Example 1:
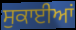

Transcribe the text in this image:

ਸੁਕਾਈਆਂ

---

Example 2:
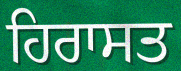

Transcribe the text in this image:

ਹਿਰਾਸਤ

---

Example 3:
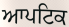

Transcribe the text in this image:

ਆਪਟਿਕ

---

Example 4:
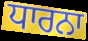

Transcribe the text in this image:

ਧਾਰਨਾ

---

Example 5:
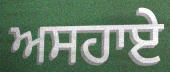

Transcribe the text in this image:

ਅਸਹਾਏ